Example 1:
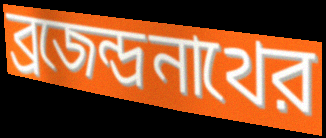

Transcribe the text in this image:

ব্রজেন্দ্রনাথের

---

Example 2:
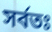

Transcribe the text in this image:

সর্বতঃ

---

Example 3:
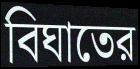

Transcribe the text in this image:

বিঘাতের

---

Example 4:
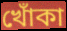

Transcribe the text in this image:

খোঁকা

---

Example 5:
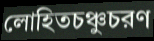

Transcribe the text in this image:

লোহিতচঞ্চুচরণ